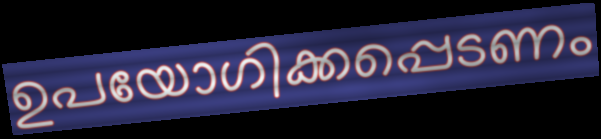
ഉപയോഗിക്കപ്പെടണം